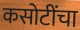
कसोटींचा